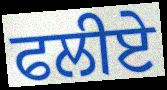
ਫਲੀਏ